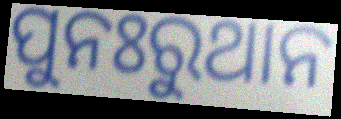
ପୁନଃରୁଥାନ